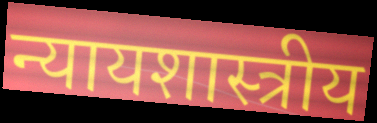
न्यायशास्त्रीय